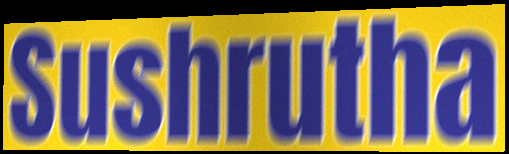
Sushrutha